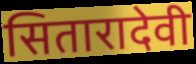
सितारादेवी